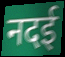
नदई